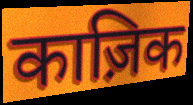
काज़िक